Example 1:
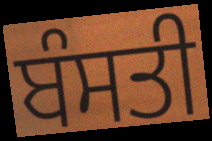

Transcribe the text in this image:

ਬੰਸਤੀ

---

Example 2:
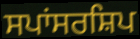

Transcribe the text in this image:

ਸਪਾਂਸਰਸ਼ਿਪ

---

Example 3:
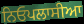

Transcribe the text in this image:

ਨਿਓਪਲਾਸੀਆ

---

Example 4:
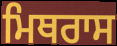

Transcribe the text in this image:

ਮਿਥਰਾਸ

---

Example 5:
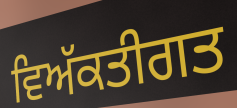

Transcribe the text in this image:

ਵਿਅੱਕਤੀਗਤ